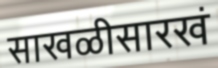
साखळीसारखं